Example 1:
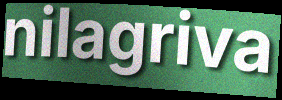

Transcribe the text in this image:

nilagriva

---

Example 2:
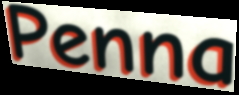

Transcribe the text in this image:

Penna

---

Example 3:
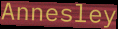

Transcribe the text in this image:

Annesley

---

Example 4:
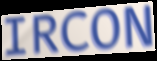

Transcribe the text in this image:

IRCON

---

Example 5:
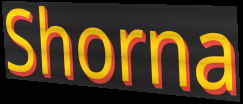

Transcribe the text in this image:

Shorna